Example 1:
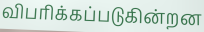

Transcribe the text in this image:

விபரிக்கப்படுகின்றன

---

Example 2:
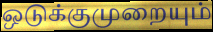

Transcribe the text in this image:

ஒடுக்குமுறையும்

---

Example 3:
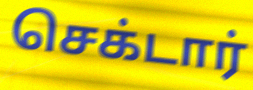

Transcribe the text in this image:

செக்டார்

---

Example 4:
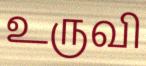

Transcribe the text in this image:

உருவி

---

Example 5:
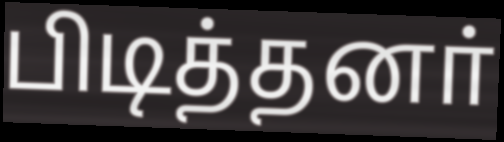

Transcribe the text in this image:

பிடித்தனர்